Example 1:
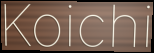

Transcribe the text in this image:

Koichi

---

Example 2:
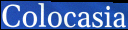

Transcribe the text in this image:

Colocasia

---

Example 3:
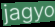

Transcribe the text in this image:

jagyo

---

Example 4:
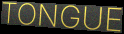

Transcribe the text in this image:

TONGUE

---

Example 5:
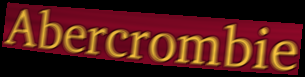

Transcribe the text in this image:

Abercrombie